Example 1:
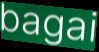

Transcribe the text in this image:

bagai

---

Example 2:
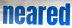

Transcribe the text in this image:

neared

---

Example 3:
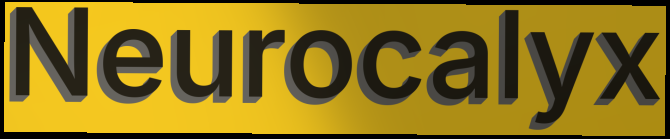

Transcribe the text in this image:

Neurocalyx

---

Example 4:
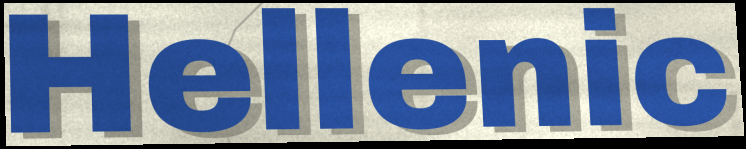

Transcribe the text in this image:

Hellenic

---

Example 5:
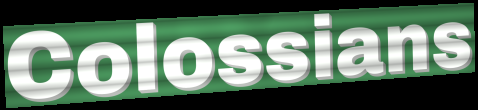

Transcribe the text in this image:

Colossians